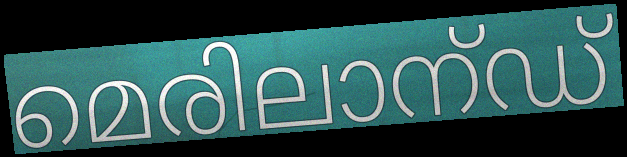
മെരിലാന്ഡ്